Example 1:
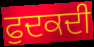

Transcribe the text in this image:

ਫੁਦਕਦੀ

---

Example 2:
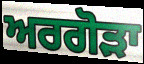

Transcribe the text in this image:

ਅਰਗੋੜਾ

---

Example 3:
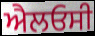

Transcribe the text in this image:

ਐਲਓਸੀ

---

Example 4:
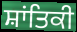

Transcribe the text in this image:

ਸ਼ਾਂਤਿਕੀ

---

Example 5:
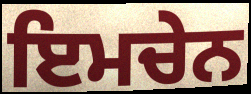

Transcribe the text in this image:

ਇਮਚੇਨ